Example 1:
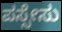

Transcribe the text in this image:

ಪಸ್ಸೇಸು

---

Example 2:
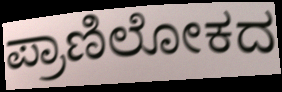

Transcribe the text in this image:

ಪ್ರಾಣಿಲೋಕದ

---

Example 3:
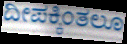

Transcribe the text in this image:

ದೀಪಕ್ಕಿಂತಲೂ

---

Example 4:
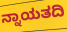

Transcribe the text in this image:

ನ್ನಾಯತದಿ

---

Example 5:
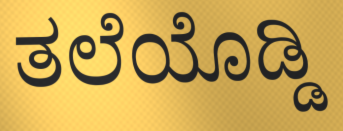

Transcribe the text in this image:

ತಲೆಯೊಡ್ಡಿ